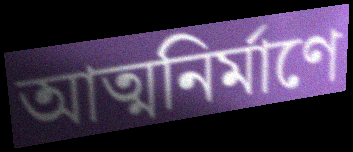
আত্মনির্মাণে